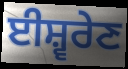
ਈਸ਼੍ਵਰੇਣ